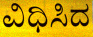
ವಿಧಿಸಿದ